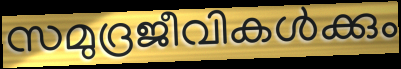
സമുദ്രജീവികൾക്കും